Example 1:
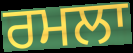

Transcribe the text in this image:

ਰਮਲਾ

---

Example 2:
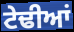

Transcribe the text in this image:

ਟੇਢੀਆਂ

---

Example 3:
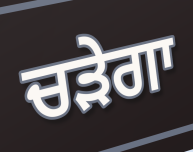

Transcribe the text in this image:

ਚੜੇਗਾ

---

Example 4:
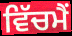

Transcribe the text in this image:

ਵਿੱਚਮੈਂ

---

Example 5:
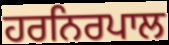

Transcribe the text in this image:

ਹਰਨਿਰਪਾਲ